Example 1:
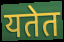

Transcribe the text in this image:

यतेत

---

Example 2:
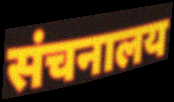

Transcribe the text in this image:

संचनालय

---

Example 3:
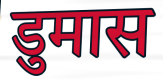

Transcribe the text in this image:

डुमास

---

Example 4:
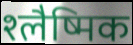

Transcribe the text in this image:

श्लैष्मिक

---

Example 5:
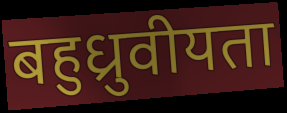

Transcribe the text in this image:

बहुध्रुवीयता